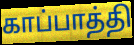
காப்பாத்தி